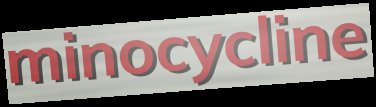
minocycline